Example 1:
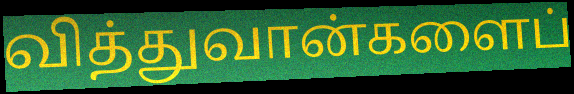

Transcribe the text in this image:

வித்துவான்களைப்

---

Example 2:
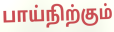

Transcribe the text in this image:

பாய்நிற்கும்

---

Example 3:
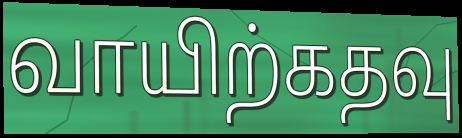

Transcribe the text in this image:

வாயிற்கதவு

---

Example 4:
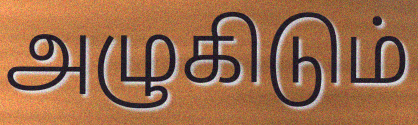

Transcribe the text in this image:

அழுகிடும்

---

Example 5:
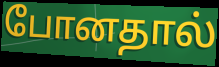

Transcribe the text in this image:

போனதால்